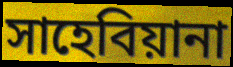
সাহেবিয়ানা